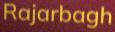
Rajarbagh